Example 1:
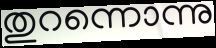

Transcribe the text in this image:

തുറന്നൊന്നു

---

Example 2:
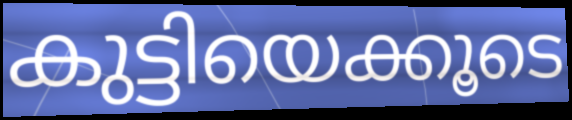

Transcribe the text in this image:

കുട്ടിയെക്കൂടെ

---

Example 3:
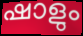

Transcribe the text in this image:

ഷാളും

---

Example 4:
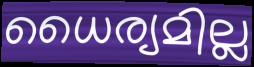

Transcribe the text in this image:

ധൈര്യമില്ല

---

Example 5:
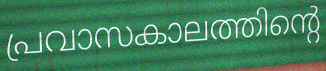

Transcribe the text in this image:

പ്രവാസകാലത്തിന്റെ